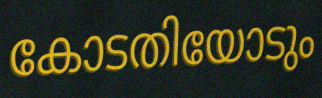
കോടതിയോടും